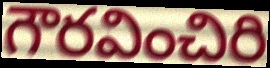
గౌరవించిరి